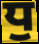
ਧੁ